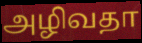
அழிவதா